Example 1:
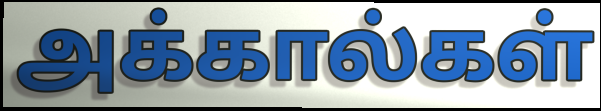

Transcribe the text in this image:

அக்கால்கள்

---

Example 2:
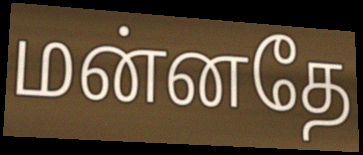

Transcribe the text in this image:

மன்னதே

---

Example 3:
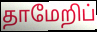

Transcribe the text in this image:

தாமேறிப்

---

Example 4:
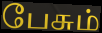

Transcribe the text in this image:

பேசும்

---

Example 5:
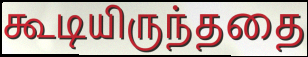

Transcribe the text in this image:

கூடியிருந்ததை